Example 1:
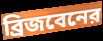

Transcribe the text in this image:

ব্রিজবেনের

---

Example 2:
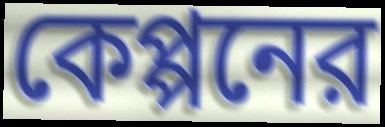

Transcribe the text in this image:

কেপ্পনের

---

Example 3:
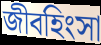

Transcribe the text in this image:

জীবহিংসা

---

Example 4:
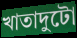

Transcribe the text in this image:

খাতাদুটো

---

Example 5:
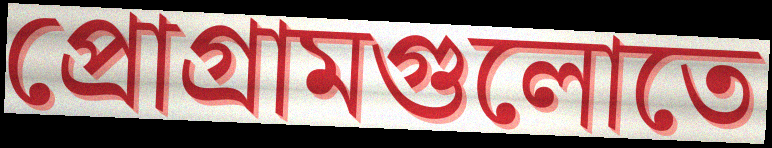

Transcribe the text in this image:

প্রোগ্রামগুলোতে